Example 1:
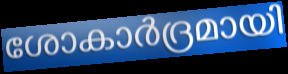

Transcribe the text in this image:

ശോകാർദ്രമായി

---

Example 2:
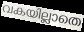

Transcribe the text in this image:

വകയില്ലാതെ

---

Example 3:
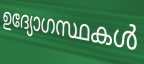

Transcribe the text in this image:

ഉദ്യോഗസ്ഥകൾ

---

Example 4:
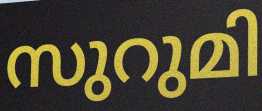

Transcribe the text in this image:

സുറുമി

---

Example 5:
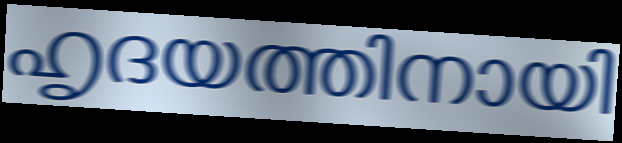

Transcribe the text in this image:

ഹൃദയത്തിനായി